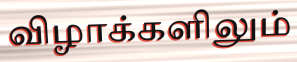
விழாக்களிலும்